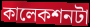
কালেকশনটা